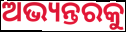
ଅଭ୍ୟନ୍ତରକୁ